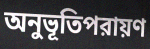
অনুভূতিপরায়ণ